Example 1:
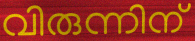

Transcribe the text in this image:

വിരുന്നിന്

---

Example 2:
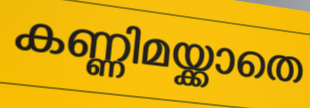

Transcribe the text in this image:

കണ്ണിമയ്ക്കാതെ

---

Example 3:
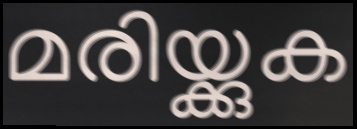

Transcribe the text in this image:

മരിയ്ക്കുക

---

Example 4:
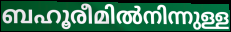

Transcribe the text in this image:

ബഹൂരീമിൽനിന്നുള്ള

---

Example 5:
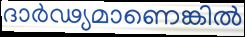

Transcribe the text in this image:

ദാർഢ്യമാണെങ്കിൽ